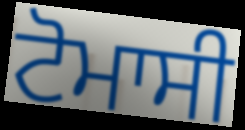
ਟੋਮਾਸੀ